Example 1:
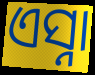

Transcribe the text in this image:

ଏସ୍ନା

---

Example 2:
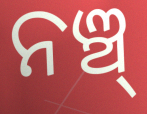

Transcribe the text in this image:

ନଞ୍ଚ୍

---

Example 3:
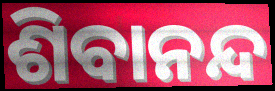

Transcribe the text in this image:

ଶିବାନନ୍ଦ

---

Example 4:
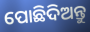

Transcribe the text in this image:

ପୋଛିଦିଅନ୍ତୁ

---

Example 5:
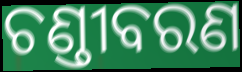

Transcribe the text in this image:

ଚଣ୍ଡୀବରଣ